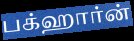
பக்ஹார்ன்